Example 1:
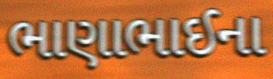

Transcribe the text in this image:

ભાણાભાઈના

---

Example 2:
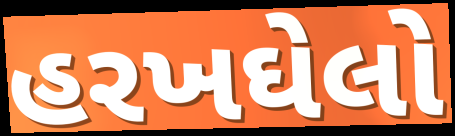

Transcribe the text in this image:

હરખઘેલો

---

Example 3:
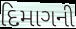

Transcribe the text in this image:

દિમાગની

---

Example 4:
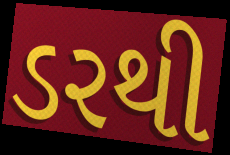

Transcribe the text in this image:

ડરથી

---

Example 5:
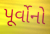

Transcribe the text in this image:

પૂર્વોનો